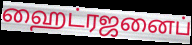
ஹைட்ரஜனைப்